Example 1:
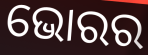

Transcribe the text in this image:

ଭୋରର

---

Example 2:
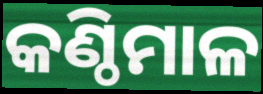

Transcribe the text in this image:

କଣ୍ଠିମାଳ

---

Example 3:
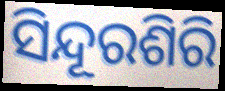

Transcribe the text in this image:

ସିନ୍ଦୂରଶିରି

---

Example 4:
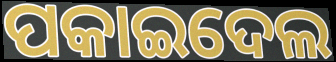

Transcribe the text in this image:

ପକାଇଦେଲ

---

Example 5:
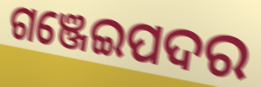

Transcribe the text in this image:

ଗଞ୍ଜେଇପଦର